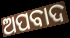
ଅପବାଦ